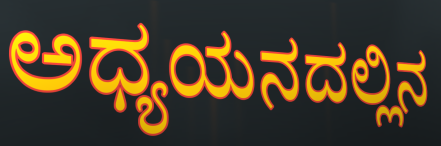
ಅಧ್ಯಯನದಲ್ಲಿನ